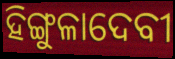
ହିଙ୍ଗୁଳାଦେବୀ